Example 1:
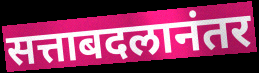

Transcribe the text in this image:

सत्ताबदलानंतर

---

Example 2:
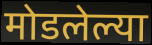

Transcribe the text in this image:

मोडलेल्या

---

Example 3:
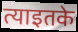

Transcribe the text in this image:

त्याइतके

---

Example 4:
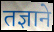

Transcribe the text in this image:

तज्ञाने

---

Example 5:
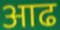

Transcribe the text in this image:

आढ